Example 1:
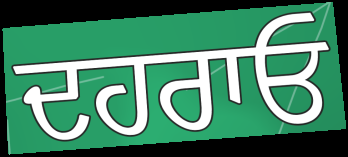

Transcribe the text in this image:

ਦਹਰਾਓ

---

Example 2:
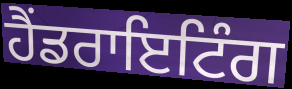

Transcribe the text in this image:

ਹੈਂਡਰਾਇਟਿੰਗ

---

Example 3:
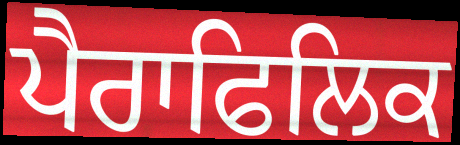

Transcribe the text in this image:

ਪੈਰਾਫਿਲਿਕ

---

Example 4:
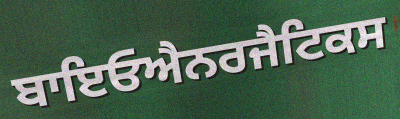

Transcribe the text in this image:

ਬਾਇਓਐਨਰਜੈਟਿਕਸ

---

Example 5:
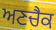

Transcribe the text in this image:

ਅਣਚੈਕ